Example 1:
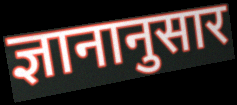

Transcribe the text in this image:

ज्ञानानुसार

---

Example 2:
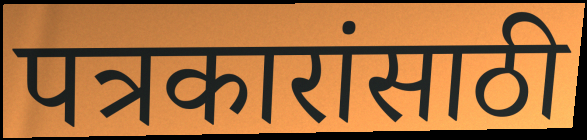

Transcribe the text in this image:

पत्रकारांसाठी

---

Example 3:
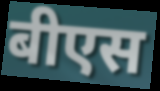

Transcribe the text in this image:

बीएस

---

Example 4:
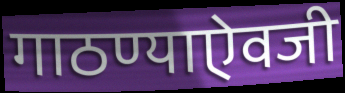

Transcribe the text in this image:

गाठण्याऐवजी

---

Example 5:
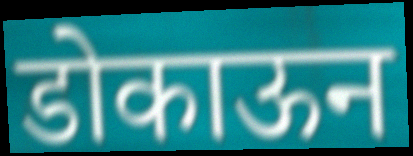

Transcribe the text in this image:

डोकाऊन